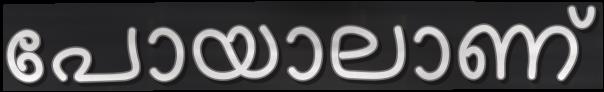
പോയാലാണ്